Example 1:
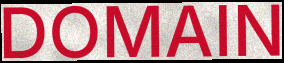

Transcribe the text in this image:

DOMAIN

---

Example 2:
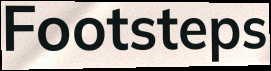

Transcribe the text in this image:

Footsteps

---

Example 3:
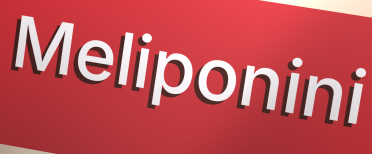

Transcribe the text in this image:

Meliponini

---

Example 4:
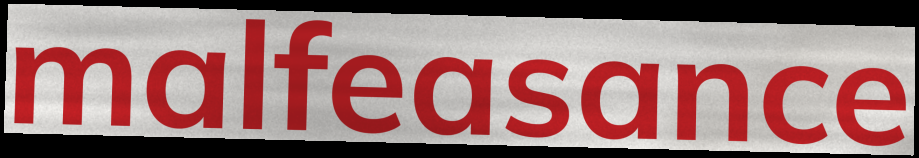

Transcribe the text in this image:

malfeasance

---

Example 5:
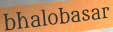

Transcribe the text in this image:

bhalobasar